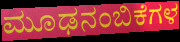
ಮೂಢನಂಬಿಕೆಗಳ